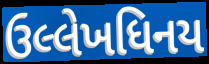
ઉલ્લેખધિનય